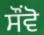
ਸੌਂਵੋ